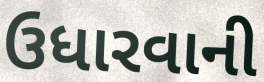
ઉધારવાની